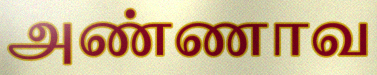
அண்ணாவ